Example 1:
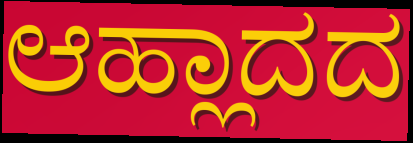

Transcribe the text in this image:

ಆಹ್ಲಾದದ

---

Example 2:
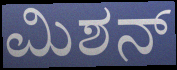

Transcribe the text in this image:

ಮಿಶನ್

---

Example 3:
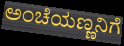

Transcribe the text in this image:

ಅಂಚೆಯಣ್ಣನಿಗೆ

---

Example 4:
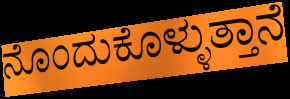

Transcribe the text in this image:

ನೊಂದುಕೊಳ್ಳುತ್ತಾನೆ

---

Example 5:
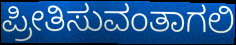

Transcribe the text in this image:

ಪ್ರೀತಿಸುವಂತಾಗಲಿ